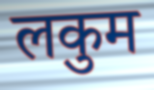
लकुम